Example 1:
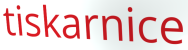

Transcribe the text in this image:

tiskarnice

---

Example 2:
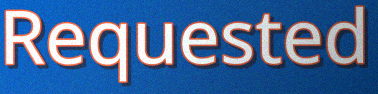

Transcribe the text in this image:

Requested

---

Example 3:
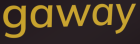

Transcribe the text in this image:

gaway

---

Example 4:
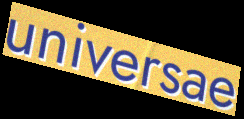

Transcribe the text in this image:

universae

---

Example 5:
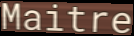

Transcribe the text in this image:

Maitre